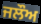
ਜਲੌਅ